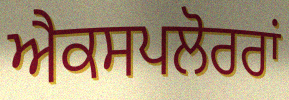
ਐਕਸਪਲੋਰਰਾਂ